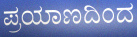
ಪ್ರಯಾಣದಿಂದ